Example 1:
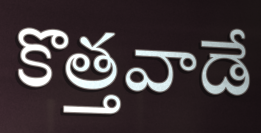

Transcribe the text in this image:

కొత్తవాడే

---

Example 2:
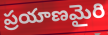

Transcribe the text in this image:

ప్రయాణమైరి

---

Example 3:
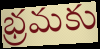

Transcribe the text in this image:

భ్రమకు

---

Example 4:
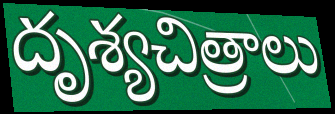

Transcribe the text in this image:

దృశ్యచిత్రాలు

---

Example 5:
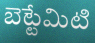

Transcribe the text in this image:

బెట్టేమిటి